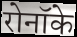
रोनॉके